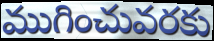
ముగించువరకు